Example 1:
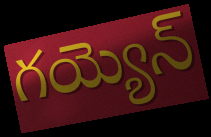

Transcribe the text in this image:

గయ్యెన్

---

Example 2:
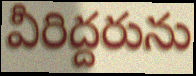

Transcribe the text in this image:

వీరిద్దరును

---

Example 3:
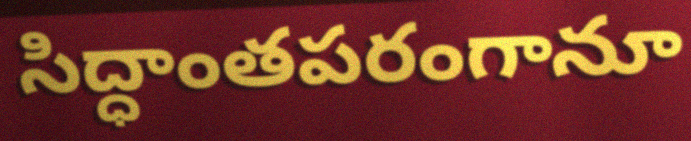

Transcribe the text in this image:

సిద్ధాంతపరంగానూ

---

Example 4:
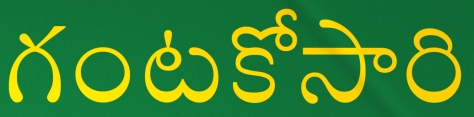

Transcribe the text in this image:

గంటకోసారి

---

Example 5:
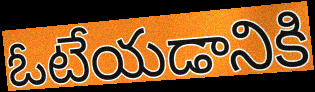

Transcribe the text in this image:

ఓటేయడానికి